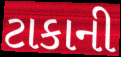
ટાકાની